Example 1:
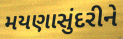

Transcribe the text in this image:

મયણાસુંદરીને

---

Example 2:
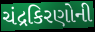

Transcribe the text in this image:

ચંદ્રકિરણોની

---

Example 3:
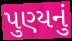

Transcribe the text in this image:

પુણ્યનું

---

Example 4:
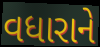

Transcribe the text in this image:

વધારાને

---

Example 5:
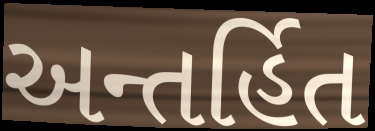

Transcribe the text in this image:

અન્તર્હિત